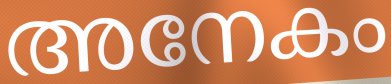
അനേകം